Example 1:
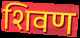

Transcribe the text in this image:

शिवण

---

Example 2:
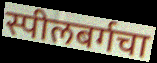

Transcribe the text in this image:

स्पीलबर्गचा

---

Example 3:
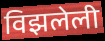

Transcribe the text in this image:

विझलेली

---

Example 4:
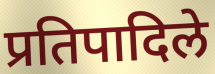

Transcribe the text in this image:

प्रतिपादिले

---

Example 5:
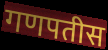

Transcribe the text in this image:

गणपतीस